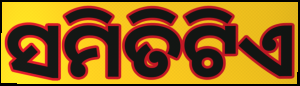
ସମିତିଟିଏ